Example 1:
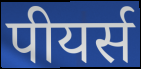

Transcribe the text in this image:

पीयर्स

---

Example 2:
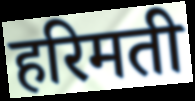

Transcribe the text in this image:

हरिमती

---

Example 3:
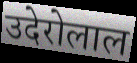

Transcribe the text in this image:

उदेरोलाल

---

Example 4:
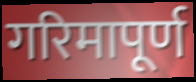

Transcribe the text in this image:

गरिमापूर्ण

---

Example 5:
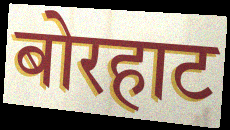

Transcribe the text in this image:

बोरहाट